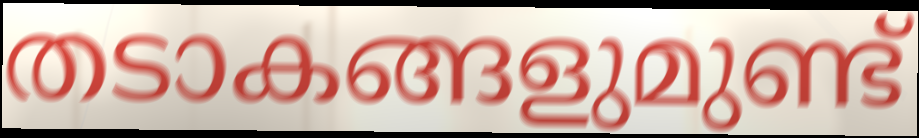
തടാകങ്ങളുമുണ്ട്